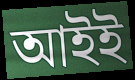
আইই